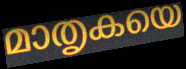
മാതൃകയെ